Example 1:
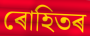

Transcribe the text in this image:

ৰোহিতৰ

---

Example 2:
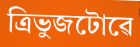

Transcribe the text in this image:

ত্ৰিভুজটোৱে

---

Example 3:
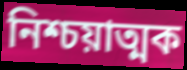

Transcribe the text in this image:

নিশ্চয়াত্মক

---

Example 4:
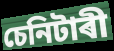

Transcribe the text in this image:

চেনিটাৰী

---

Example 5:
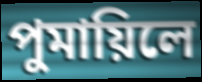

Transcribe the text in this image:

পুমায়িলে